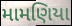
મામણિયા